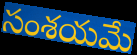
సంశయమే